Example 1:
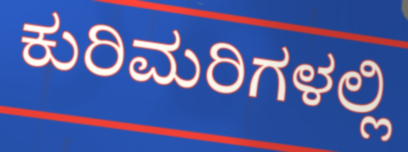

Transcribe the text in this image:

ಕುರಿಮರಿಗಳಲ್ಲಿ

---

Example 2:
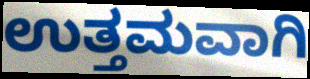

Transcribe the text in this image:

ಉತ್ತಮವಾಗಿ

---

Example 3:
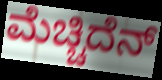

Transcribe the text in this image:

ಮೆಚ್ಚಿದೆನ್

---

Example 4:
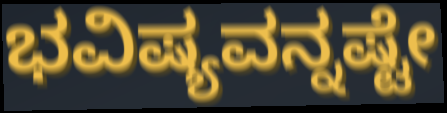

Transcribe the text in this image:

ಭವಿಷ್ಯವನ್ನಷ್ಟೇ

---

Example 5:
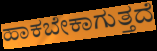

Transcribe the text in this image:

ಹಾಕಬೇಕಾಗುತ್ತದೆ